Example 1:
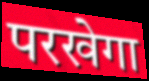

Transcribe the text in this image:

परखेगा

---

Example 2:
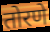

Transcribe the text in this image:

तोरणे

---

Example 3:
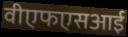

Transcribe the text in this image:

वीएफएसआई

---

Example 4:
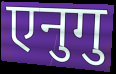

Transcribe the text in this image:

एनुगु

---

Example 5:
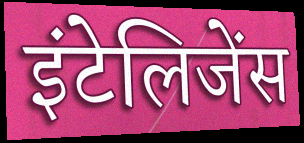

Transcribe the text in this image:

इंटेलिजेंस